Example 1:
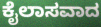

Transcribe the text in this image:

ಕೈಲಾಸವಾದ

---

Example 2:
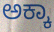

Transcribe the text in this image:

ಅಕ್ಕಾ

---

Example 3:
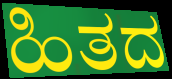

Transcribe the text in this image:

ಹಿತದ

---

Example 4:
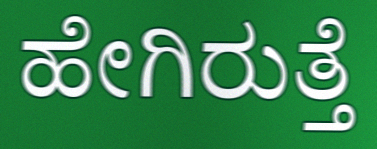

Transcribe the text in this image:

ಹೇಗಿರುತ್ತೆ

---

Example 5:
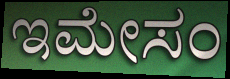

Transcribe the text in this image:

ಇಮೇಸಂ